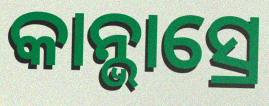
କାନ୍ଭାସ୍ରେ